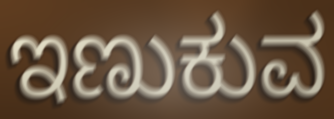
ಇಣುಕುವ